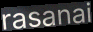
rasanai